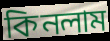
কিনলাম